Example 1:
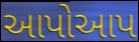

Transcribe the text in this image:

આપોઆપ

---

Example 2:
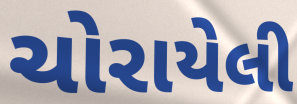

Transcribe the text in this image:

ચોરાયેલી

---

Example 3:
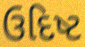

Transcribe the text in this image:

ઉદિષ્ટ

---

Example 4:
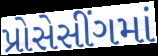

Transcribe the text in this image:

પ્રોસેસીંગમાં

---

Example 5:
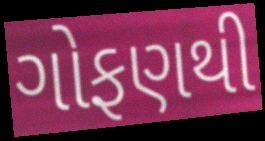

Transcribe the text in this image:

ગોફણથી